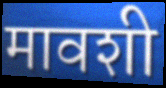
मावशी